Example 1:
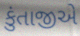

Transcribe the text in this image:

કુંતાજીએ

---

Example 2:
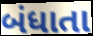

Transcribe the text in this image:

બંધાતા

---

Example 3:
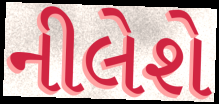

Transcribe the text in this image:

નીલેશે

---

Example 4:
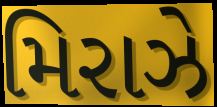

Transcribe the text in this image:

મિરાઝે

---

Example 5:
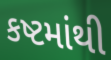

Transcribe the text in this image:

કષ્ટમાંથી